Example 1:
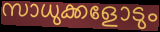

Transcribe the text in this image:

സാധുക്കളോടും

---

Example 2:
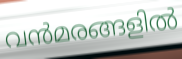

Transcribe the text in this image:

വൻമരങ്ങളിൽ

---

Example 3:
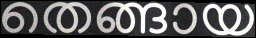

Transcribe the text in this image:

തെങ്ങായ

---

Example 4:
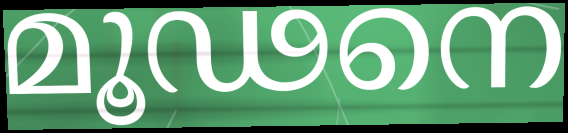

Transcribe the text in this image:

മൂഢനെ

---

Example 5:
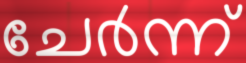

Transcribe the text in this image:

ചേർന്ന്